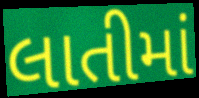
લાતીમાં